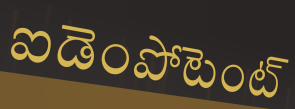
ఐడెంపోటెంట్